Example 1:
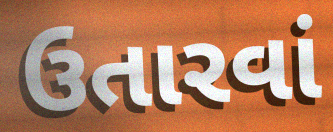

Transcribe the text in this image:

ઉતારવાં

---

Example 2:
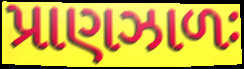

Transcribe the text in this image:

પ્રાણઝાળઃ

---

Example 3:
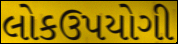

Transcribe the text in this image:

લોકઉપયોગી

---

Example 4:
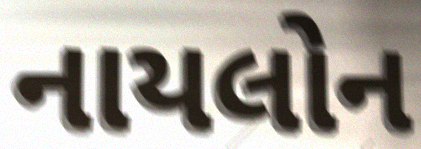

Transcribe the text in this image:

નાયલોન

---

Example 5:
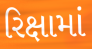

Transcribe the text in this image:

રિક્ષામાં